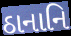
ઠાનાનિ